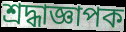
শ্রদ্ধাজ্ঞাপক